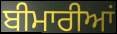
ਬੀਮਾਰੀਆਂ